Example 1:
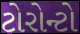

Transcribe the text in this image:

ટોરોન્ટો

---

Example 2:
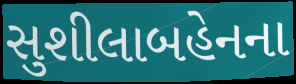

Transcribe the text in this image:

સુશીલાબહેનના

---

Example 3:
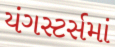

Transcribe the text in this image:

યંગસ્ટર્સમાં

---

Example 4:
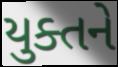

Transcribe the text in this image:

યુક્તને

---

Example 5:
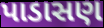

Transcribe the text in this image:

પાડાસણ